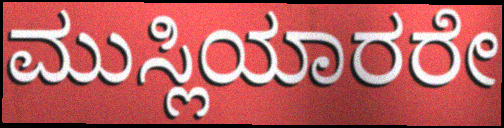
ಮುಸ್ಲಿಯಾರರೇ